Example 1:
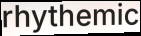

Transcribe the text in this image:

rhythemic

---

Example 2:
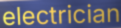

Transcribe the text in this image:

electrician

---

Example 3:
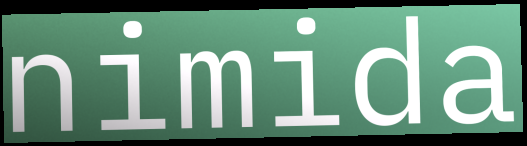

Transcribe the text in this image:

nimida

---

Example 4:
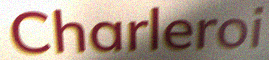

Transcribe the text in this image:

Charleroi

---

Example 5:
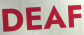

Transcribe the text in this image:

DEAF